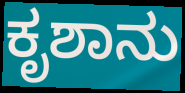
ಕೃಶಾನು